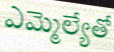
ఎమ్మెల్యేతో